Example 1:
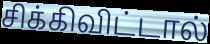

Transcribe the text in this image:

சிக்கிவிட்டால்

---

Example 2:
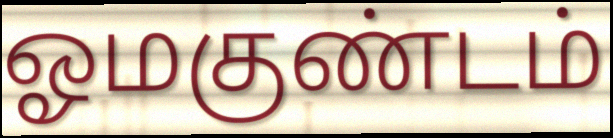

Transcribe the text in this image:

ஓமகுண்டம்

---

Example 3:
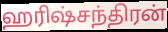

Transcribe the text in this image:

ஹரிஷ்சந்திரன்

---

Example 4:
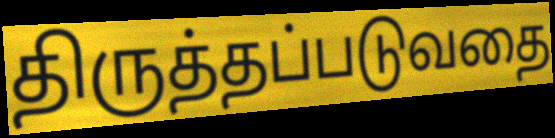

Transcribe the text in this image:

திருத்தப்படுவதை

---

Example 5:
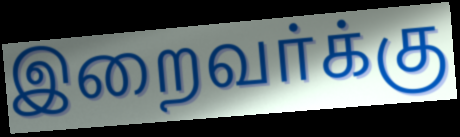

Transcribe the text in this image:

இறைவர்க்கு